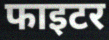
फाइटर